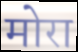
मोरा